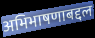
अभिभाषणाबद्दल